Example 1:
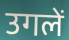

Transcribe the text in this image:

उगलें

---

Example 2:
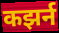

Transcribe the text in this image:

कझर्न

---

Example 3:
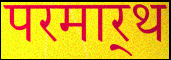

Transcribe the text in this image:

परमार्थ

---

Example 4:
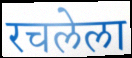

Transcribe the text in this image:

रचलेला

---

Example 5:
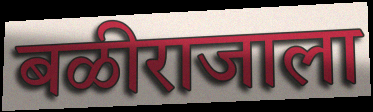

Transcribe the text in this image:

बळीराजाला